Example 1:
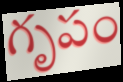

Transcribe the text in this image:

గృపం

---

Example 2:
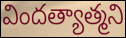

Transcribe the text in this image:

విందత్యాత్మని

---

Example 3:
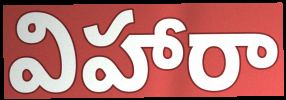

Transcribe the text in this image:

విహారా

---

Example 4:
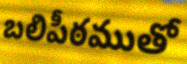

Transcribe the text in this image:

బలిపీఠముతో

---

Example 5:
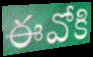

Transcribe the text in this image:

ఈవోకి